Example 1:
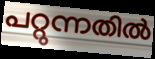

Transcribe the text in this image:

പറ്റുന്നതിൽ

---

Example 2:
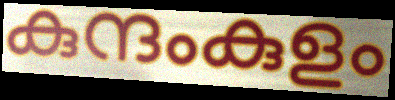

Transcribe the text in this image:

കുന്ദംകുളം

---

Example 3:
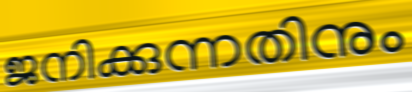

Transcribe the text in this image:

ജനിക്കുന്നതിനും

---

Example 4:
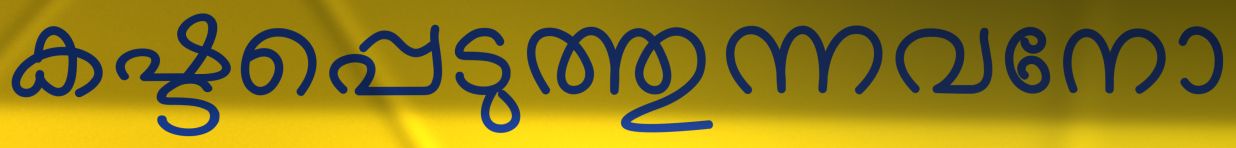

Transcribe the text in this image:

കഷ്ടപ്പെടുത്തുന്നവനോ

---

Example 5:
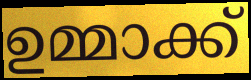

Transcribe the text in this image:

ഉമ്മാക്ക്